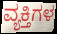
ವ್ಯಕ್ತಿಗಳ